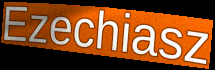
Ezechiasz